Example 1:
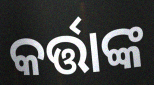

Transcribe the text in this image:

କର୍ତ୍ତାଙ୍କ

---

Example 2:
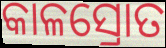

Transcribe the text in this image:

କାଳସ୍ରୋତ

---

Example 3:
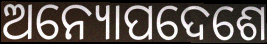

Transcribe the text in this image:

ଅନ୍ୟୋପଦେଶେ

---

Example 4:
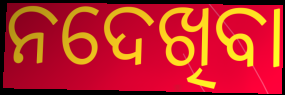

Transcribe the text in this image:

ନଦେଖିବା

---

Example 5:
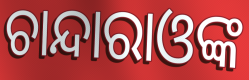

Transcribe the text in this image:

ଚାନ୍ଦାରାଓଙ୍କ